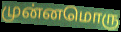
முன்னமொரு